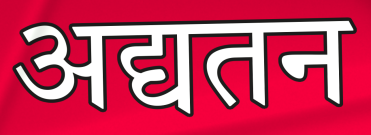
अद्यतन